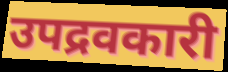
उपद्रवकारी